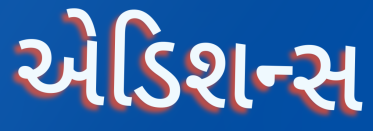
એડિશન્સ